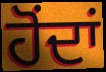
ਹੋਂਦਾਂ